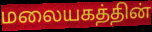
மலையகத்தின்